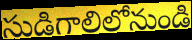
సుడిగాలిలోనుండి